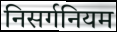
निसर्गनियम